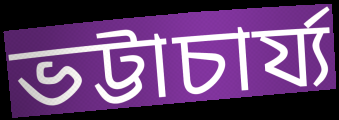
ভট্টাচার্য্য